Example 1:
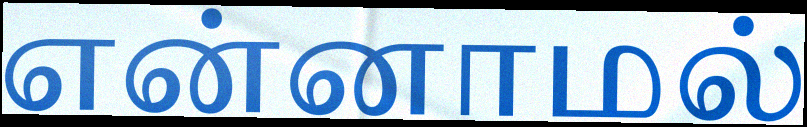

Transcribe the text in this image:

என்னாமல்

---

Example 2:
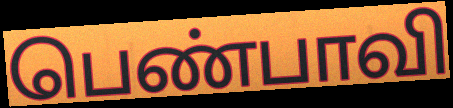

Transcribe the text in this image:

பெண்பாவி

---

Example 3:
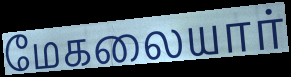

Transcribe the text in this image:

மேகலையார்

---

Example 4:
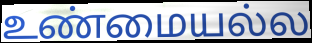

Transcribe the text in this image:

உண்மையல்ல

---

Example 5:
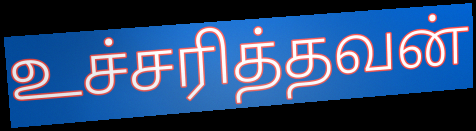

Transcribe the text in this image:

உச்சரித்தவன்